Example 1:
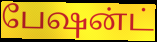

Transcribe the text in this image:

பேஷன்ட்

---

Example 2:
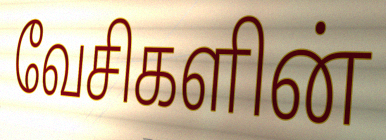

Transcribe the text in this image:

வேசிகளின்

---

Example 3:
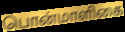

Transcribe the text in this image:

பொன்மாளிகை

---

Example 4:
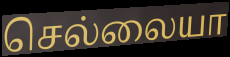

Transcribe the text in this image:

செல்லையா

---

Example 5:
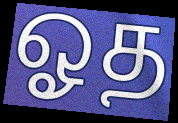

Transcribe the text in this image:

ஓத